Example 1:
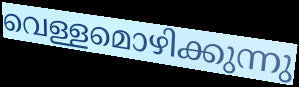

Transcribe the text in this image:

വെള്ളമൊഴിക്കുന്നു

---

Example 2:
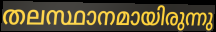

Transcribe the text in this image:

തലസ്ഥാനമായിരുന്നു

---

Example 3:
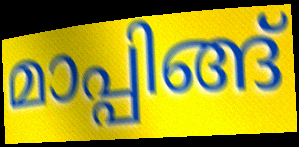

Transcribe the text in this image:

മാപ്പിങ്ങ്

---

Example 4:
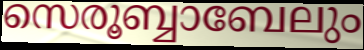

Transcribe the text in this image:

സെരൂബ്ബാബേലും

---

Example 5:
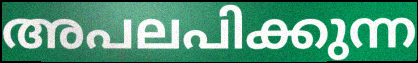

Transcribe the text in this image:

അപലപിക്കുന്ന